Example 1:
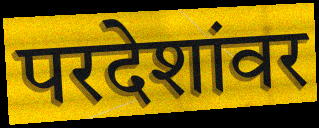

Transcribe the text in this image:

परदेशांवर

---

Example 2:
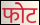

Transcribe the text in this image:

फोट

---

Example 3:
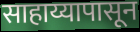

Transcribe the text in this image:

साहाय्यापासून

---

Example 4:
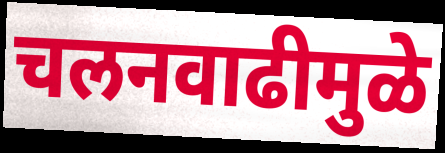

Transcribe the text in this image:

चलनवाढीमुळे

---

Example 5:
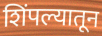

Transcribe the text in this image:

शिंपल्यातून